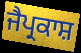
ਜੈਪ੍ਰਕਾਸ਼